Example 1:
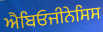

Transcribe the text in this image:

ਐਬਿਓਜੀਨੇਸਿਸ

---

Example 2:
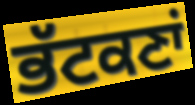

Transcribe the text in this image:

ਭੱਟਕਣਾਂ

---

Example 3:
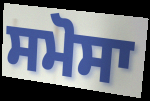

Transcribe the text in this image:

ਸਮੋਸਾ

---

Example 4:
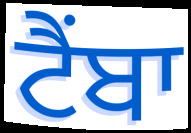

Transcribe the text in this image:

ਟੈਂਬਾ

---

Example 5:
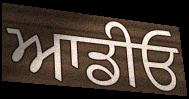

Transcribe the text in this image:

ਆਡੀਓ